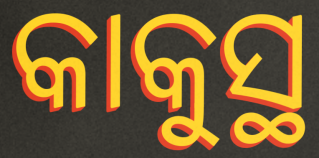
କାକୁସ୍ଥ